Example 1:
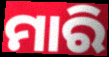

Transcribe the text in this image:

ମାରି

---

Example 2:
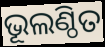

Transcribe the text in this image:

ଭୂଲଣ୍ଠିତ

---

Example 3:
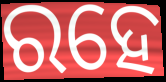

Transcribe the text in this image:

ରହେ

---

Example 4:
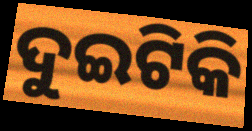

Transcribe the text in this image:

ଦୁଇଟିକି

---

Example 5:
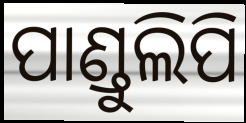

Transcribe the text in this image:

ପାଣ୍ଡୁଲିପି